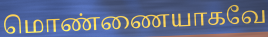
மொண்ணையாகவே